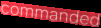
commanded